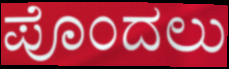
ಪೊಂದಲು